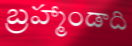
బ్రహ్మాండాది